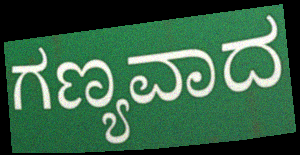
ಗಣ್ಯವಾದ